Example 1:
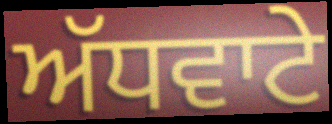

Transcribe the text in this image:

ਅੱਧਵਾਟੇ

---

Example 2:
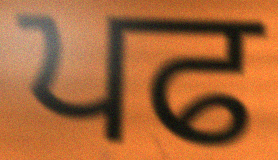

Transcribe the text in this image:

ਪਫ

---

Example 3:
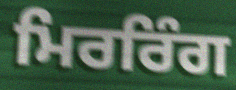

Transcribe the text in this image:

ਮਿਰਰਿੰਗ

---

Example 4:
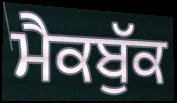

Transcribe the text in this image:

ਮੈਕਬੁੱਕ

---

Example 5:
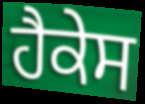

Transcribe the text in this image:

ਹੈਕੇਸ